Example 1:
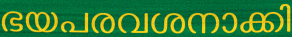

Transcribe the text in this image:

ഭയപരവശനാക്കി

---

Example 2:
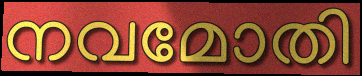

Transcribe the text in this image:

നവമോതി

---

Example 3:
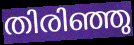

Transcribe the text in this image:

തിരിഞ്ഞു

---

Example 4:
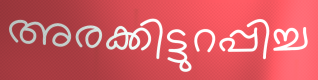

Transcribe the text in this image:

അരക്കിട്ടുറപ്പിച്ച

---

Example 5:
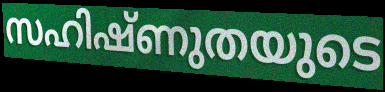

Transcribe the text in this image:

സഹിഷ്ണുതയുടെ